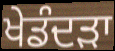
ਖੇਡੰਦੜਾ